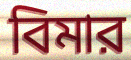
বিমার